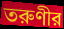
তরুণীর